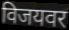
विजयवर